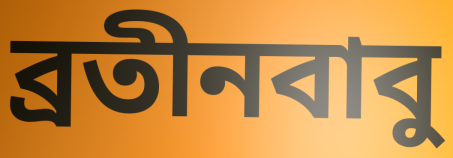
ব্রতীনবাবু